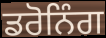
ਡਰੋਨਿੰਗ